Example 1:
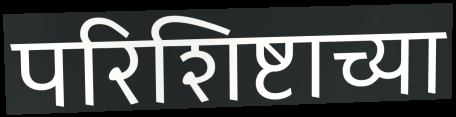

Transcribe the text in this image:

परिशिष्टाच्या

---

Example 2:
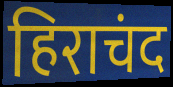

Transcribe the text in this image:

हिराचंद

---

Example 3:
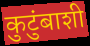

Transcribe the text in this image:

कुटुंबाशी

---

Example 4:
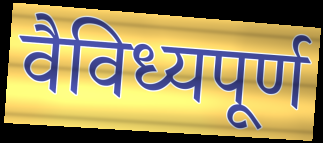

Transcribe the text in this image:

वैविध्यपूर्ण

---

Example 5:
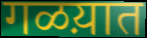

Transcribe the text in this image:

गळय़ात